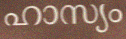
ഹാസ്യം